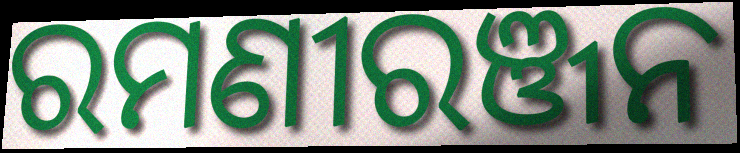
ରମଣୀରଞ୍ଜନ